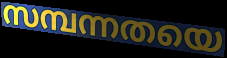
സമ്പന്നതയെ